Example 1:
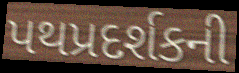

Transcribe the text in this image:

પથપ્રદર્શકની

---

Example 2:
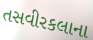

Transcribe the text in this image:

તસવીરકલાના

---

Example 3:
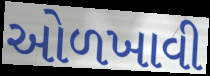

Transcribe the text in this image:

ઓળખાવી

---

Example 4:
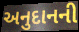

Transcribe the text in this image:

અનુદાનની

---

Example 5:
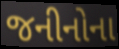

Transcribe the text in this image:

જનીનોના